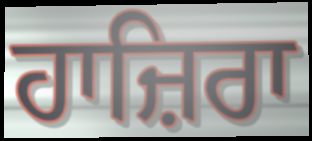
ਹਾਜ਼ਿਰਾ